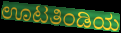
ಊಟತಿಂಡಿಯ